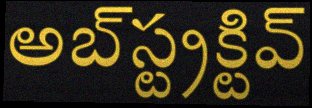
అబ్‌స్ట్రక్టివ్